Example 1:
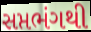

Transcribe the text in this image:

સપ્તભંગથી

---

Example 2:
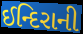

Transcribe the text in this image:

ઈન્દિરાની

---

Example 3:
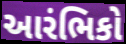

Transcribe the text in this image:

આરંભિકો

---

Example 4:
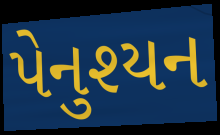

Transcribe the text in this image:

પેનુશ્યન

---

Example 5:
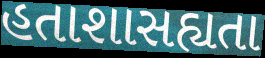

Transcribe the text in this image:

હતાશાસહ્યતા